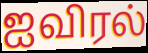
ஐவிரல்